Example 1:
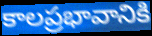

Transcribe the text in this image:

కాలప్రభావానికి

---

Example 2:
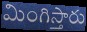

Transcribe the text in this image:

మింగిస్తారు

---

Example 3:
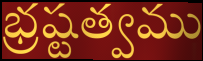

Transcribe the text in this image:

భ్రష్టత్వము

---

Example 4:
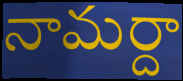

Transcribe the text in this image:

నామర్దా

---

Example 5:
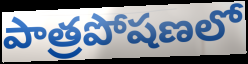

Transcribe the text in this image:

పాత్రపోషణలో